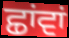
ਛਾਂਵਾਂ